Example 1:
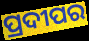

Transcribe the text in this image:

ପ୍ରଦୀପର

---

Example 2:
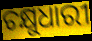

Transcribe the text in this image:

ଚକ୍ଷୁଧାରୀ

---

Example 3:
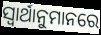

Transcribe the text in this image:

ସ୍ୱାର୍ଥାନୁମାନରେ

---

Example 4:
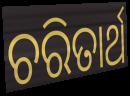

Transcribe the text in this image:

ଚରିତାର୍ଥ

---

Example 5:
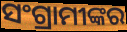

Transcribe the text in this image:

ସଂଗ୍ରାମୀଙ୍କର